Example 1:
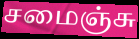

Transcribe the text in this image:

சமைஞ்சு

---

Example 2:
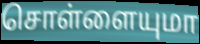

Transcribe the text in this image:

சொள்ளையுமா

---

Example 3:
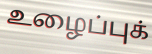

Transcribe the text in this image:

உழைப்புக்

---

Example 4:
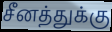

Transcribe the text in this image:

சீனத்துக்கு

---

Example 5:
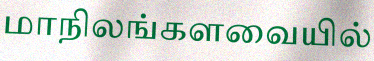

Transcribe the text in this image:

மாநிலங்களவையில்